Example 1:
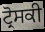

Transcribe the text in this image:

ਟ੍ਰੋਸਕੀ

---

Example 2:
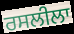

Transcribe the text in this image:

ਰਸਲੀਲਾ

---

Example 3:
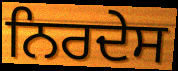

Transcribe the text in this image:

ਨਿਰਦੇਸ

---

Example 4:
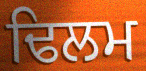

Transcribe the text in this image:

ਢਿਲਮ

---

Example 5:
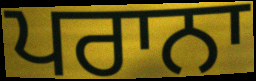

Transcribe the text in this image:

ਪਰਾਨਾ